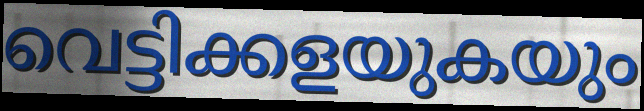
വെട്ടിക്കളയുകയും